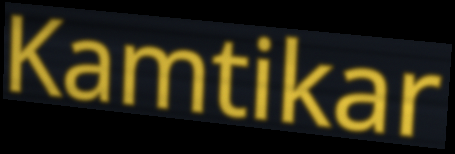
Kamtikar